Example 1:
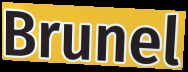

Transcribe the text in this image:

Brunel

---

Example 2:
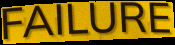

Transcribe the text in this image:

FAILURE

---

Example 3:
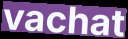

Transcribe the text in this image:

vachat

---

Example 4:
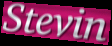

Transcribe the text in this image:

Stevin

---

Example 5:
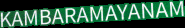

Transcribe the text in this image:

KAMBARAMAYANAM